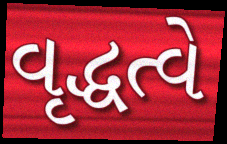
વૃદ્ધત્વે